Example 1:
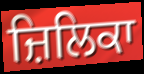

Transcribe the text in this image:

ਜ਼ਿਲਿਕਾ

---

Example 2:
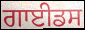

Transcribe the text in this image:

ਗਾਈਡਸ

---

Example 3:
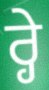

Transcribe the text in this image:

ਰ੍ਹੇ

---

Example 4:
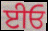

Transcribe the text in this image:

ਈਓ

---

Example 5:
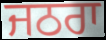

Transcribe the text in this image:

ਜਠਰਾ